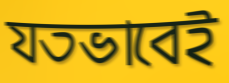
যতভাবেই